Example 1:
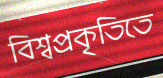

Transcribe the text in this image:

বিশ্বপ্রকৃতিতে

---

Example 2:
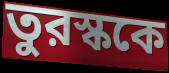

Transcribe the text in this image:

তুরস্ককে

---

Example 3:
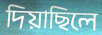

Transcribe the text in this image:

দিয়াছিলে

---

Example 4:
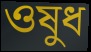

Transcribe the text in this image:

ওষুধ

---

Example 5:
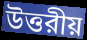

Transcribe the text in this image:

উত্তরীয়